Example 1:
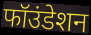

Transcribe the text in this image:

फॉउंडेशन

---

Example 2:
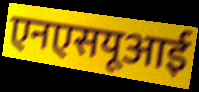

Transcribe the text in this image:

एनएसयूआई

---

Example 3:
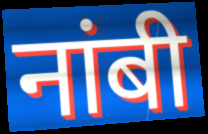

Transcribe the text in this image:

नांबी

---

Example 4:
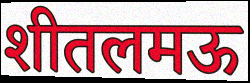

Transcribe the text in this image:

शीतलमऊ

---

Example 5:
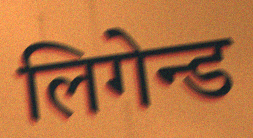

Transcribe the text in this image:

लिगेन्ड